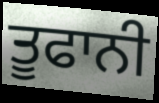
ਤੂਫਾਨੀ